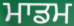
ਮਾਡਮ